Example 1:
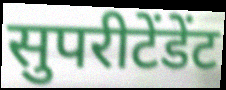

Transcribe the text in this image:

सुपरीटेंडेंट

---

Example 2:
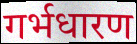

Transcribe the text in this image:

गर्भधारण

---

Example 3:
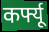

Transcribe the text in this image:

कर्फ्यू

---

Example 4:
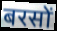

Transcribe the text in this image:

बरसों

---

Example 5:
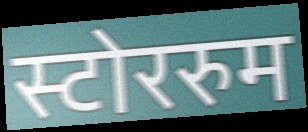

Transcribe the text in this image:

स्टोररुम